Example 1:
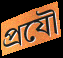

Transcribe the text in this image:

প্রযৌ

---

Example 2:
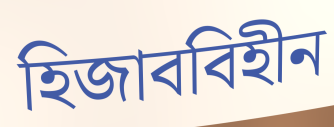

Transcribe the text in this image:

হিজাববিহীন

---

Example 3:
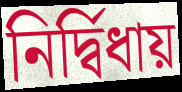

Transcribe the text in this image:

নির্দ্বিধায়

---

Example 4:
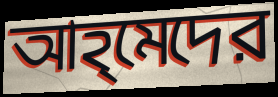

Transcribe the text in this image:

আহ্‌মেদের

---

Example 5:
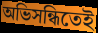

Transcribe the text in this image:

অভিসন্ধিতেই